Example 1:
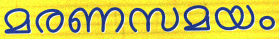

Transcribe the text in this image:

മരണസമയം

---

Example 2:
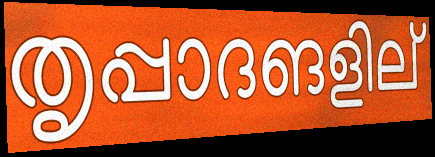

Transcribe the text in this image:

തൃപ്പാദങളില്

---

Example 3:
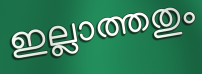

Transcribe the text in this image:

ഇല്ലാത്തതും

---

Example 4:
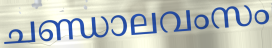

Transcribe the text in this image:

ചണ്ഡാലവംസം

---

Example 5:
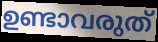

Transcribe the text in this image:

ഉണ്ടാവരുത്